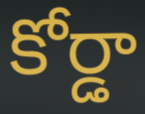
కోర్డా